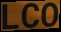
LCO